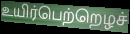
உயிர்பெற்றெழச்